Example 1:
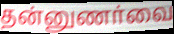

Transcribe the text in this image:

தன்னுணர்வை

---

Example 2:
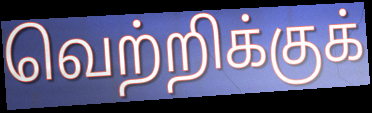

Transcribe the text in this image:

வெற்றிக்குக்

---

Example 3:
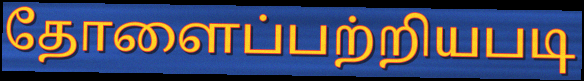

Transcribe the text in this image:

தோளைப்பற்றியபடி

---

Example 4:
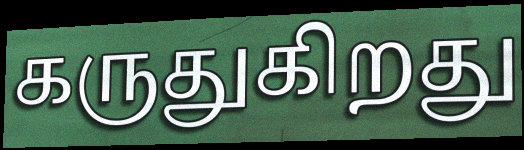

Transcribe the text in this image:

கருதுகிறது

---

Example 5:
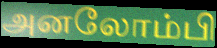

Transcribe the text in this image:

அனலோம்பி